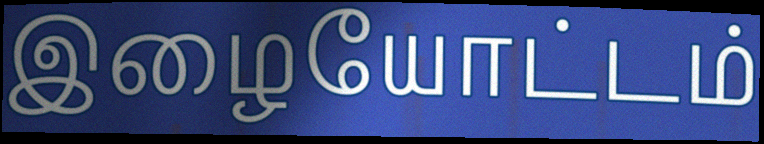
இழையோட்டம்